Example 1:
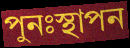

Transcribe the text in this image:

পুনঃস্থাপন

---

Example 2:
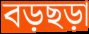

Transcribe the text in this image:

বড়ছড়া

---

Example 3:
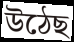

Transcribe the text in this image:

উঠেছ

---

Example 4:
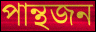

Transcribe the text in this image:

পান্থজন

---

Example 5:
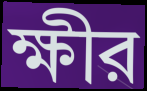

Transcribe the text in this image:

ক্ষীর